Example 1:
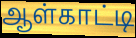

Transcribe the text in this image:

ஆள்காட்டி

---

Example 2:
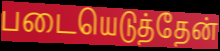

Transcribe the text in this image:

படையெடுத்தேன்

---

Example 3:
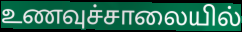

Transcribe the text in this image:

உணவுச்சாலையில்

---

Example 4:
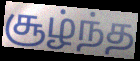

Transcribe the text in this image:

சூழ்ந்த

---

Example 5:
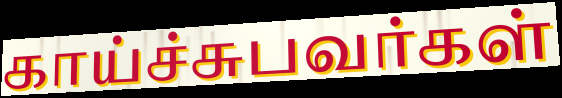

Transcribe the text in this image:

காய்ச்சுபவர்கள்